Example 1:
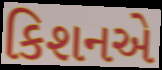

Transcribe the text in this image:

કિશનએ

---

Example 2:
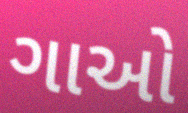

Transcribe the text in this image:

ગાઓ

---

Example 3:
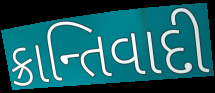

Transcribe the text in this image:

ક્રાન્તિવાદી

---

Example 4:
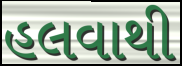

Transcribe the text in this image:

હલવાથી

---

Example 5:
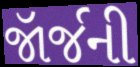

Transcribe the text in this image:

જૉર્જની